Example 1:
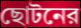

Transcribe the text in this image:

ছোটনের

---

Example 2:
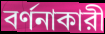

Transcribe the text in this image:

বর্ণনাকারী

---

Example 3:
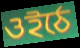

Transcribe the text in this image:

ওইঠে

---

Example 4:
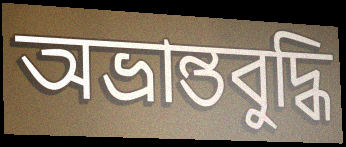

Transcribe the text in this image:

অভ্রান্তবুদ্ধি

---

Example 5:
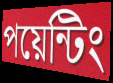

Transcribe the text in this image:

পয়েন্টিং